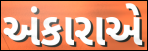
અંકારાએ